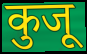
कुजू